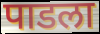
पाडला